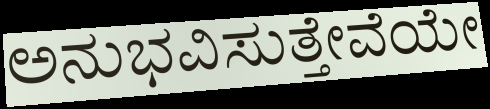
ಅನುಭವಿಸುತ್ತೇವೆಯೇ